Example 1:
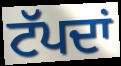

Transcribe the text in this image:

ਟੱਪਦਾਂ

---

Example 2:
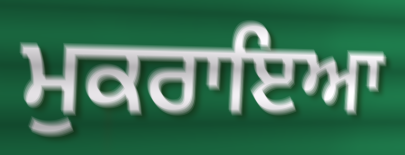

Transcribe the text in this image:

ਮੁਕਰਾਇਆ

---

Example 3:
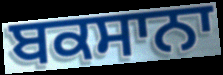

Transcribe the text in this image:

ਬਕਸਾਨਾ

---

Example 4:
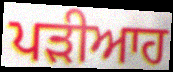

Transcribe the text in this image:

ਪੜੀਆਹ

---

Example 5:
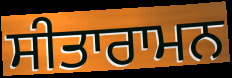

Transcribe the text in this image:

ਸੀਤਾਰਾਮਨ